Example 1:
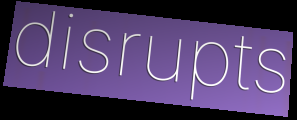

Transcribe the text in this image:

disrupts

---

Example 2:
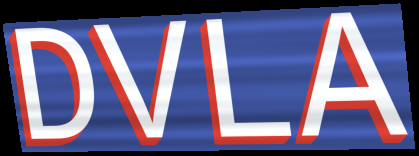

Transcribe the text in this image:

DVLA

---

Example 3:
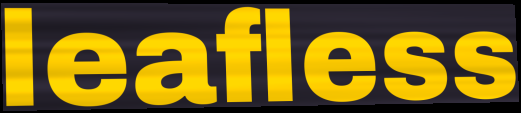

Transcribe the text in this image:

leafless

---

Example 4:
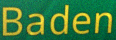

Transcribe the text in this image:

Baden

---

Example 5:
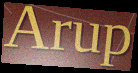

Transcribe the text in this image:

Arup